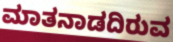
ಮಾತನಾಡದಿರುವ